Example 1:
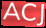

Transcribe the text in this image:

ACJ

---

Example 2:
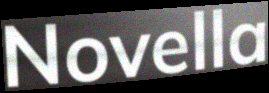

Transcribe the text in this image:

Novella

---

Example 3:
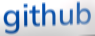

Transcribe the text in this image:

github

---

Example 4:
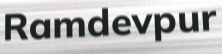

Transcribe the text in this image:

Ramdevpur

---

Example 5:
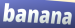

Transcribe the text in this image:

banana